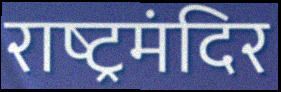
राष्ट्रमंदिर